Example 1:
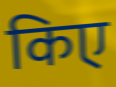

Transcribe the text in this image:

किए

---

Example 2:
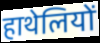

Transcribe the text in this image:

हाथेलियों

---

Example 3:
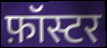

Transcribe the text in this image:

फ़ॉस्टर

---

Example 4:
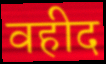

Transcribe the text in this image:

वहीद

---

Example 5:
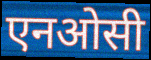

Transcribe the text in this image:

एनओसी